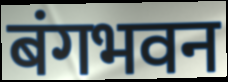
बंगभवन